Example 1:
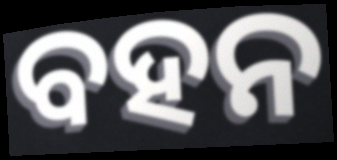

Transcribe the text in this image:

ବହନ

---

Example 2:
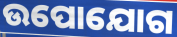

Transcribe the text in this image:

ଉପୋଯୋଗ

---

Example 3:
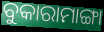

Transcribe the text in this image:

ବୁକାରାମାଙ୍ଗା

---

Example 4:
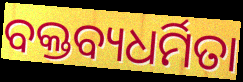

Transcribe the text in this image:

ବକ୍ତବ୍ୟଧର୍ମିତା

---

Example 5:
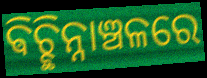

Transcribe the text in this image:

ଵିଚ୍ଛିନ୍ନାଞ୍ଚଳରେ